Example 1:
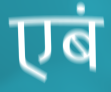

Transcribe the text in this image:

एबं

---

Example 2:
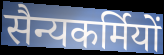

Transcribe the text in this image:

सैन्यकर्मियों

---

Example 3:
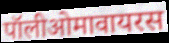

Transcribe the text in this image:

पॉलीओमावायरस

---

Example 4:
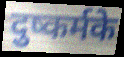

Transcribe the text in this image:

दुष्कर्मके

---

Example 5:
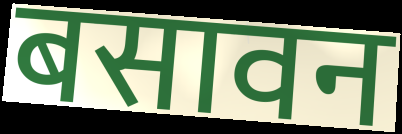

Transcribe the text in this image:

बसावन